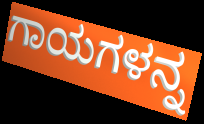
ಗಾಯಗಳನ್ನ